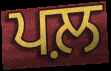
ਪਲ਼